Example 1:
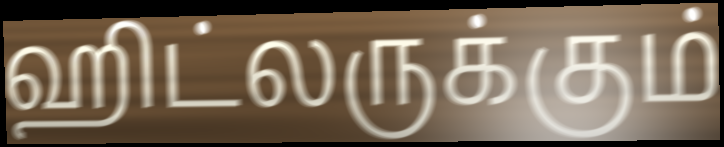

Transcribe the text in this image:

ஹிட்லருக்கும்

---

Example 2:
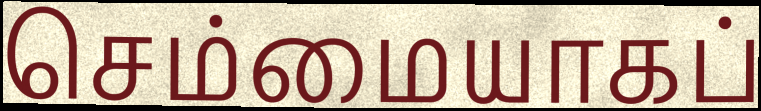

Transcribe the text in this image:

செம்மையாகப்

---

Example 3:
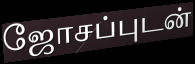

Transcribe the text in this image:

ஜோசப்புடன்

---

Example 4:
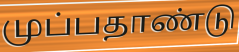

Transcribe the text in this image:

முப்பதாண்டு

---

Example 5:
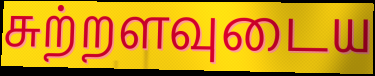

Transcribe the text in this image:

சுற்றளவுடைய